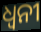
ଧ୍ୱନୀ